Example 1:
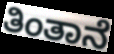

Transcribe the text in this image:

ತಿಂತಾನೆ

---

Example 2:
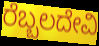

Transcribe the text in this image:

ರೆಬ್ಬಲದೇವಿ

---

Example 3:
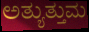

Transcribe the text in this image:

ಅತ್ಯುತ್ತುಮ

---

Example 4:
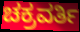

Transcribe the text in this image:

ಚಕ್ರವರ್ತಿ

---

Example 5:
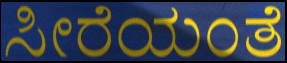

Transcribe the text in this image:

ಸೀರೆಯಂತೆ